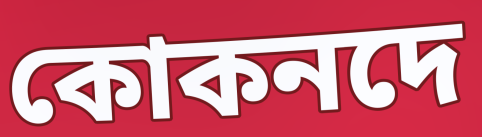
কোকনদে